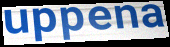
uppena